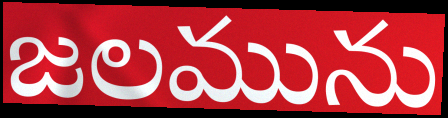
జలమును